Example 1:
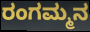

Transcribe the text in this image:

ರಂಗಮ್ಮನ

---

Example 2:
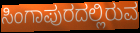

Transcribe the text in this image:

ಸಿಂಗಾಪುರದಲ್ಲಿರುವ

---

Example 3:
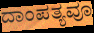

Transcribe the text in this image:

ದಾಂಪತ್ಯವೂ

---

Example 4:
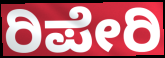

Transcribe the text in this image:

ರಿಪೇರಿ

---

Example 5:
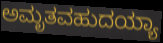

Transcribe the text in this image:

ಅಮೃತವಹುದಯ್ಯಾ